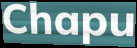
Chapu